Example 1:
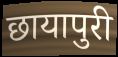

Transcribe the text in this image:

छायापुरी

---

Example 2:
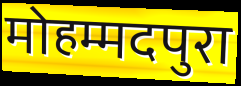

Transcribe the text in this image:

मोहम्मदपुरा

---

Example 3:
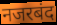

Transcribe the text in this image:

नजरबंद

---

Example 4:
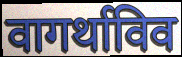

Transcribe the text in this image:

वागर्थाविव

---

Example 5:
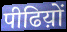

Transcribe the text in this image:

पीढिय़ों